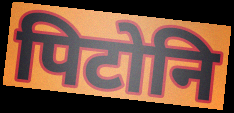
पिटोनि